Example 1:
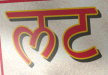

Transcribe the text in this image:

लट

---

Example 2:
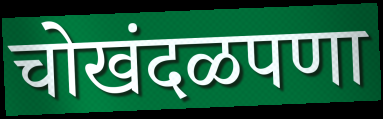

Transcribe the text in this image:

चोखंदळपणा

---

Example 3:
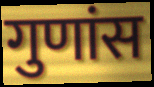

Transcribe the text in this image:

गुणांस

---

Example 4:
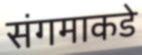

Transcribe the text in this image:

संगमाकडे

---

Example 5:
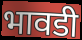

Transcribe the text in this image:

भावडी